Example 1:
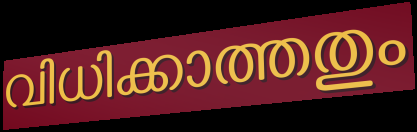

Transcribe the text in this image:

വിധിക്കാത്തതും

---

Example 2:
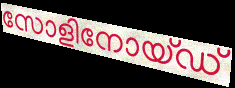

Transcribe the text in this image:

സോളിനോയ്ഡ്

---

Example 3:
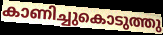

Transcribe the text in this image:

കാണിച്ചുകൊടുത്തു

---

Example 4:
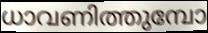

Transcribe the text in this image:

ധാവണിത്തുമ്പോ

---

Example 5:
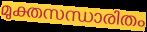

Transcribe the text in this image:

മുക്തസന്ധാരിതം